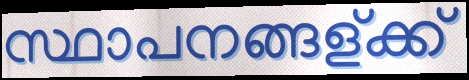
സ്ഥാപനങ്ങള്ക്ക്